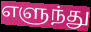
எளுந்து